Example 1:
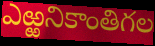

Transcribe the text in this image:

ఎఱ్ఱనికాంతిగల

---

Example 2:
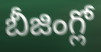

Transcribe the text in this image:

బీజింగ్లో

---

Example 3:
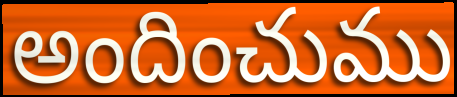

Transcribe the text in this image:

అందించుము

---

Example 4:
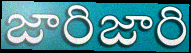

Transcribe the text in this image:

జారిజారి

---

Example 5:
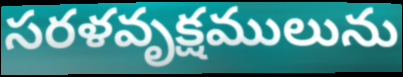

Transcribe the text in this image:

సరళవృక్షములును